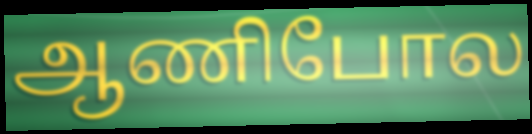
ஆணிபோல